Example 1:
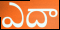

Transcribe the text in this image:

ఎదా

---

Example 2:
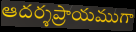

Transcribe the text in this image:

ఆదర్శప్రాయముగా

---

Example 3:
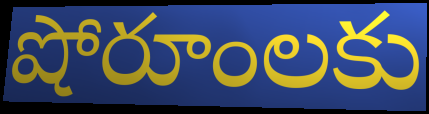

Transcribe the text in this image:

షోరూంలకు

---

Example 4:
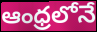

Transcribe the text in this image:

ఆంధ్రలోనే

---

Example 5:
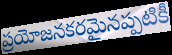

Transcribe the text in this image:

ప్రయోజనకరమైనప్పటికీ